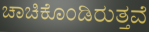
ಚಾಚಿಕೊಂಡಿರುತ್ತವೆ